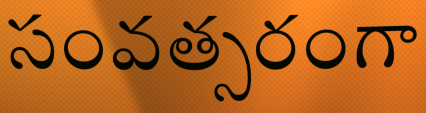
సంవత్సరంగా